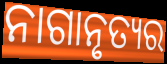
ନାଗାନୃତ୍ୟର